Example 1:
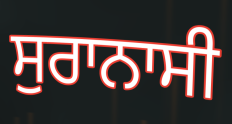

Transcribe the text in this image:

ਸੁਰਾਨਾਸੀ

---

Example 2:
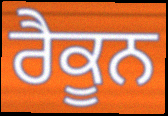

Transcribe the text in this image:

ਰੈਕੂਨ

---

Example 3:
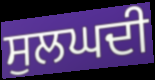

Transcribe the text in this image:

ਸੁਲਘਦੀ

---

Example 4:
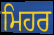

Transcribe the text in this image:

ਮਿਹਰ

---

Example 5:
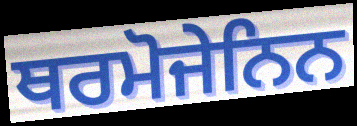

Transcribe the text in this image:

ਥਰਮੋਜੇਨਿਨ